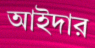
আইদার